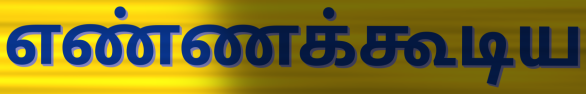
எண்ணக்கூடிய